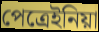
পেত্রেইনিয়া